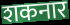
शकनार